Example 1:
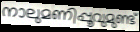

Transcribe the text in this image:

നാലുമണിപ്പൂവുമുണ്ട്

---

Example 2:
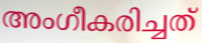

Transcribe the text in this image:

അംഗീകരിച്ചത്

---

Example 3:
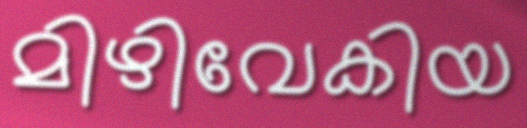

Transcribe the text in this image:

മിഴിവേകിയ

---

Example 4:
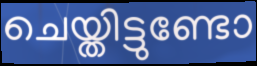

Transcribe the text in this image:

ചെയ്തിട്ടുണ്ടോ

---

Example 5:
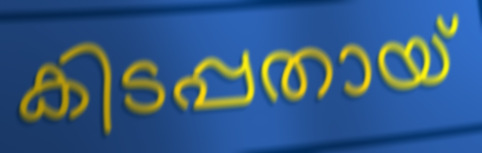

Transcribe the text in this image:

കിടപ്പതായ്